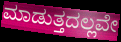
ಮಾಡುತ್ತದಲ್ಲವೇ